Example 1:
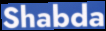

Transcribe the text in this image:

Shabda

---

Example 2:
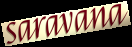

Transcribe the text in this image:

saravana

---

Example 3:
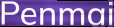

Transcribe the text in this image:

Penmai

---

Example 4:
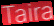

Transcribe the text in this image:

Taira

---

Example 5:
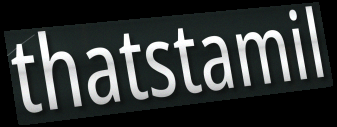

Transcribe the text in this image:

thatstamil